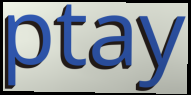
ptay